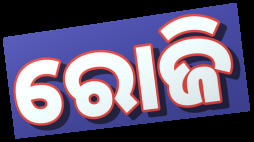
ରୋଜି